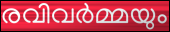
രവിവർമ്മയും